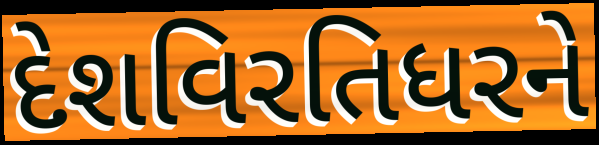
દેશવિરતિધરને